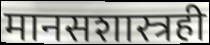
मानसशास्त्रही